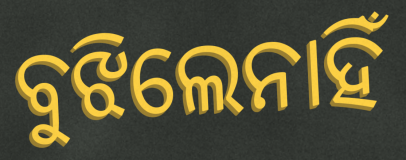
ବୁଝିଲେନାହିଁ